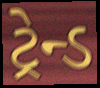
ટ્રેન્ડ